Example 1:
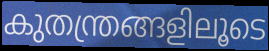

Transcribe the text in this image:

കുതന്ത്രങ്ങളിലൂടെ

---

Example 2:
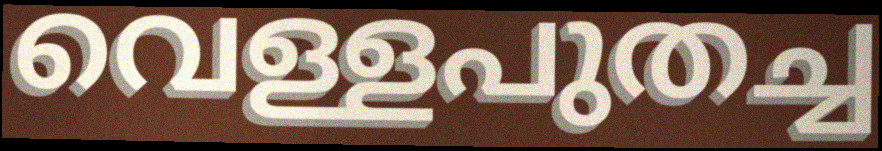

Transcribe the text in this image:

വെള്ളപുതച്ച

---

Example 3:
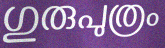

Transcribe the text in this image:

ഗുരുപുത്രം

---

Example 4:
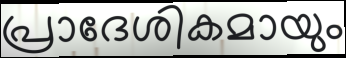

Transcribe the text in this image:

പ്രാദേശികമായും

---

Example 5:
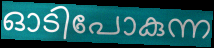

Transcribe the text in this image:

ഓടിപോകുന്ന